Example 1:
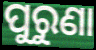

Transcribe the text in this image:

ପୁରୁଣା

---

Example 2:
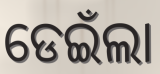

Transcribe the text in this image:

ଡେଇଁଲା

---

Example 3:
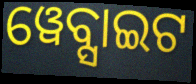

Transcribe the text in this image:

ୱେବ୍ସାଇଟ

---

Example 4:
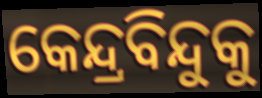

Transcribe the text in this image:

କେନ୍ଦ୍ରବିନ୍ଦୁକୁ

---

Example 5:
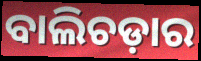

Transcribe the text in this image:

ବାଲିଚଡ଼ାର